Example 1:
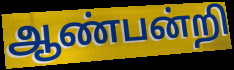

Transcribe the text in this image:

ஆண்பன்றி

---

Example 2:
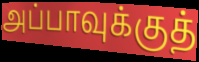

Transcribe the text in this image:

அப்பாவுக்குத்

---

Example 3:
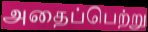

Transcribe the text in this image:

அதைப்பெற்று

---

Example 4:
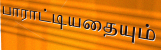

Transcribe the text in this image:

பாராட்டியதையும்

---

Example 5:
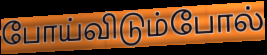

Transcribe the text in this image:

போய்விடும்போல்